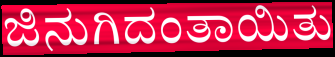
ಜಿನುಗಿದಂತಾಯಿತು